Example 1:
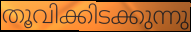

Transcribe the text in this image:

തൂവിക്കിടക്കുന്നു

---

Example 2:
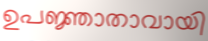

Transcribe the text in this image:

ഉപജ്ഞാതാവായി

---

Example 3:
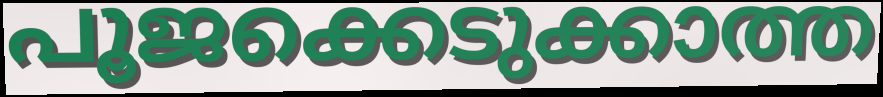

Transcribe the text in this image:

പൂജക്കെടുക്കാത്ത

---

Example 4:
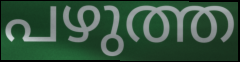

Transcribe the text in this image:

പഴുത്ത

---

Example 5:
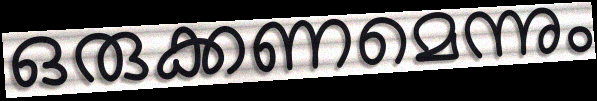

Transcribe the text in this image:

ഒരുക്കണമെന്നും